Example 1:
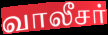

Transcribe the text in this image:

வாலீசர்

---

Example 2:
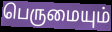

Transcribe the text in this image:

பெருமையும்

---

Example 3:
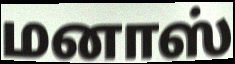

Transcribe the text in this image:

மனாஸ்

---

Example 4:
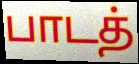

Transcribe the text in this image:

பாடத்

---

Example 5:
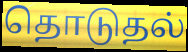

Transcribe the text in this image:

தொடுதல்